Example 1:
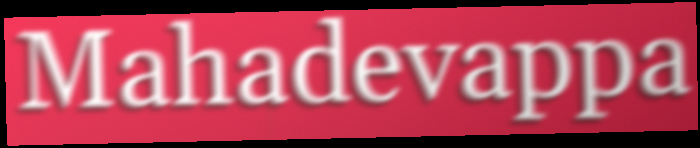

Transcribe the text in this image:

Mahadevappa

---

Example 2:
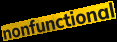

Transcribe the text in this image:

nonfunctional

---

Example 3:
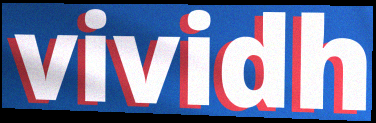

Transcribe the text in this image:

vividh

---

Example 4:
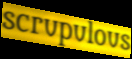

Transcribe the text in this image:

scrupulous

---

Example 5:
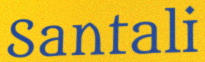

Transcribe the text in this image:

Santali